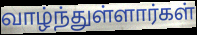
வாழ்ந்துள்ளார்கள்